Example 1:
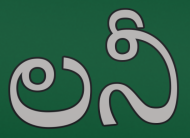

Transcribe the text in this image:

లనీ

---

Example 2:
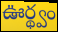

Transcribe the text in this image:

ఊర్థ్వం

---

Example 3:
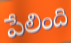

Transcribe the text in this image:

పేలింది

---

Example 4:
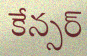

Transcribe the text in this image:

కేన్సర్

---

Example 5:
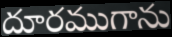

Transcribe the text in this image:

దూరముగాను